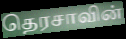
தெரசாவின்